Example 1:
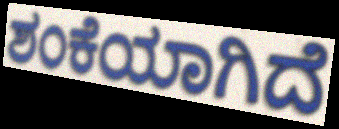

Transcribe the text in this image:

ಶಂಕೆಯಾಗಿದೆ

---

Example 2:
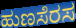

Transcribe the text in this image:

ಹುಣಸೆರಸ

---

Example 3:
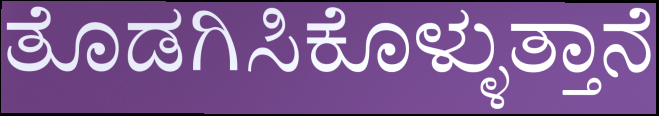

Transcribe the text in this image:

ತೊಡಗಿಸಿಕೊಳ್ಳುತ್ತಾನೆ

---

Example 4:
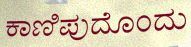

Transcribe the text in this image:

ಕಾಣಿಪುದೊಂದು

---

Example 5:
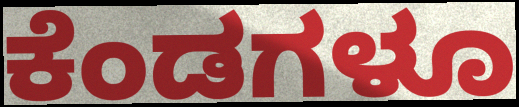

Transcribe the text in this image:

ಕೆಂಡಗಳೂ